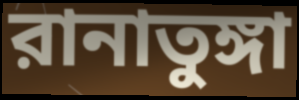
রানাতুঙ্গা